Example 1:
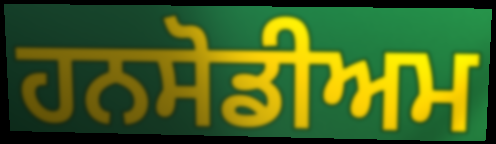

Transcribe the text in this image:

ਹਨਸੋਡੀਅਮ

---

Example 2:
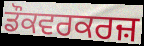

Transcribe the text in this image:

ਡੌਕਵਰਕਰਜ਼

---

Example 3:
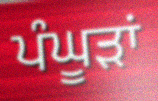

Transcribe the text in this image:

ਪੰਘੂੜਾਂ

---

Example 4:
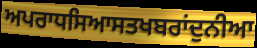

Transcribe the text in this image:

ਅਪਰਾਧਸਿਆਸਤਖਬਰਾਂਦੁਨੀਆ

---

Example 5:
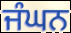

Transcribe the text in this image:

ਜੰਘਨ